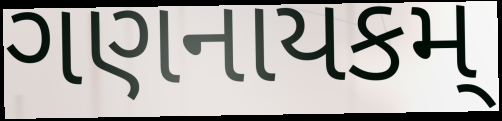
ગણનાયકમ્